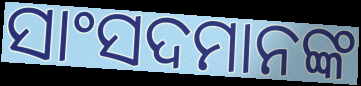
ସାଂସଦମାନଙ୍କ